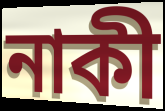
নাকী